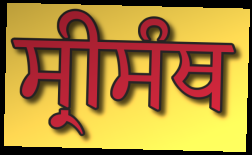
ਸ੍ਰੀਸੰਥ